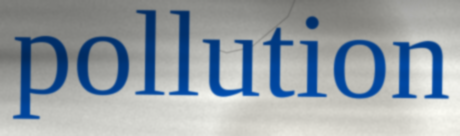
pollution